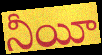
నీయీ